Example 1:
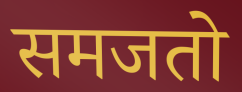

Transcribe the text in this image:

समजतो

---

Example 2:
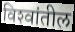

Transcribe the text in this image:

विश्वांतील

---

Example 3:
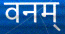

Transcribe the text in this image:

वनम्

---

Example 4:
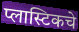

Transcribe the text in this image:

प्लास्टिकचे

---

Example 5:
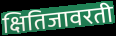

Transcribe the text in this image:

क्षितिजावरती